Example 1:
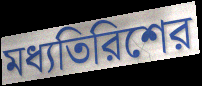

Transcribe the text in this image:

মধ্যতিরিশের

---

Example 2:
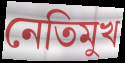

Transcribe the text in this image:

নেতিমুখ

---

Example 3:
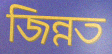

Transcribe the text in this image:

জিন্নত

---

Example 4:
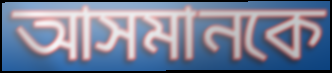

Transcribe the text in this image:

আসমানকে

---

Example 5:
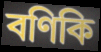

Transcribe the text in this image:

বণিকি